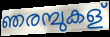
ഞരമ്പുകള്